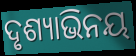
ଦୃଶ୍ୟାଭିନୟ